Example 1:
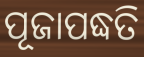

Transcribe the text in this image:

ପୂଜାପଦ୍ଧତି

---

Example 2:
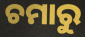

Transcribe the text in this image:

ଚମାରୁ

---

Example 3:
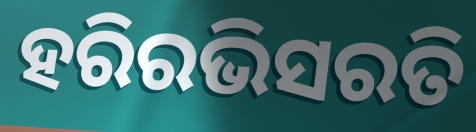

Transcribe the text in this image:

ହରିରଭିସରତି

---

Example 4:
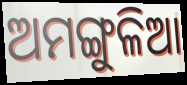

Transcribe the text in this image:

ଅମଙ୍ଗୁଳିଆ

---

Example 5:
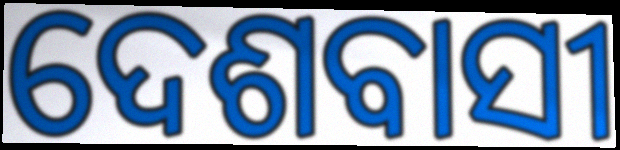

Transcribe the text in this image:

ଦେଶବାସୀ